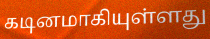
கடினமாகியுள்ளது